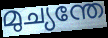
മുച്യന്തേ